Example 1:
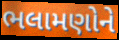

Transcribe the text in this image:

ભલામણોને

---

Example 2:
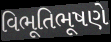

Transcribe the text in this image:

વિભૂતિભૂષણે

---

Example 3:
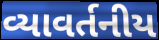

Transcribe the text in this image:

વ્યાવર્તનીય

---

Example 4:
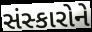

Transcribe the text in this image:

સંસ્કારોને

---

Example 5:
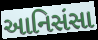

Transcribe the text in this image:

આનિસંસા